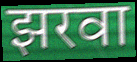
झरवा